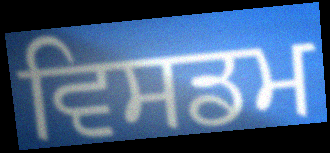
ਵਿਸਡਮ